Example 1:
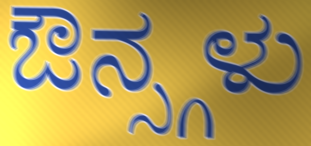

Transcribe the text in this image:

ಔನ್ಸ್ಗಳು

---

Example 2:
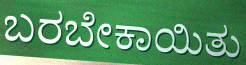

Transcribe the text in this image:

ಬರಬೇಕಾಯಿತು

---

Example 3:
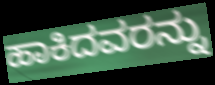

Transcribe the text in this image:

ಹಾಕಿದವರನ್ನು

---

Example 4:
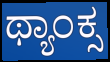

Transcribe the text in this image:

ಥ್ಯಾಂಕ್ಸ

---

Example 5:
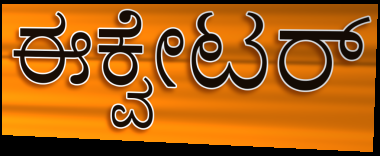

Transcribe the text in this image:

ಈಕ್ವೇಟರ್